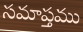
సమాప్తము